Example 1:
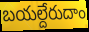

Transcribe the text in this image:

బయల్దేరుదాం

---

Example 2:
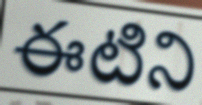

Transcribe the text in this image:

ఈటిని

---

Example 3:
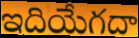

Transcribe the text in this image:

ఇదియేగదా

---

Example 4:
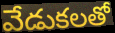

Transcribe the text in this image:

వేడుకలతో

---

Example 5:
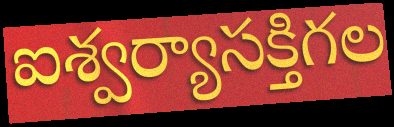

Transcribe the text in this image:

ఐశ్వర్యాసక్తిగల